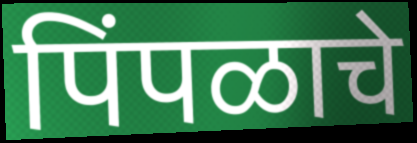
पिंपळाचे